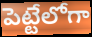
పెట్టేలోగా